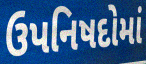
ઉપનિષદોમાં